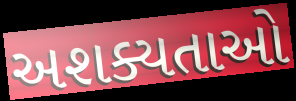
અશક્યતાઓ